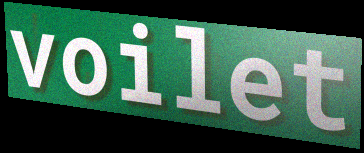
voilet